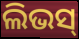
ଲିଭସ୍